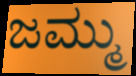
ಜಮ್ಮು